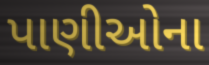
પાણીઓના